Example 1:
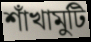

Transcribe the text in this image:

শাঁখামুটি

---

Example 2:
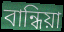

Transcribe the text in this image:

বান্ধিয়া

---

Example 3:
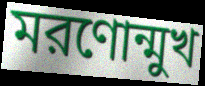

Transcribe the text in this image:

মরণোন্মুখ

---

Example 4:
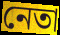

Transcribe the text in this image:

নেতা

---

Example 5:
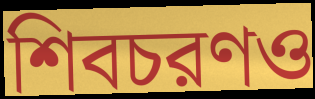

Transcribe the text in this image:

শিবচরণও